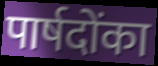
पार्षदोंका